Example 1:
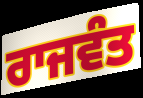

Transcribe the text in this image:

ਰਾਜਵੰਤ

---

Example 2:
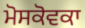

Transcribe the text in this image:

ਮੋਸਕੋਵਕਾ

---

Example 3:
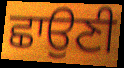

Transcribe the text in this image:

ਛਾਉਣੀ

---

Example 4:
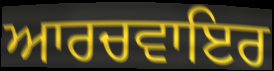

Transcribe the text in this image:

ਆਰਚਵਾਇਰ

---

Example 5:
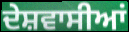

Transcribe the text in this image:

ਦੇਸ਼ਵਾਸੀਆਂ